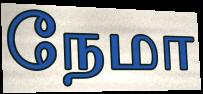
நேமா